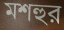
মশহুর